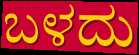
ಬಳದು